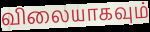
விலையாகவும்